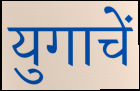
युगाचें